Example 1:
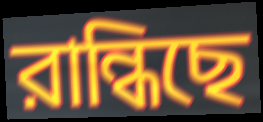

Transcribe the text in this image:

রান্ধিছে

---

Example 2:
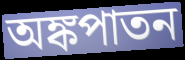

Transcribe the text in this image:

অঙ্কপাতন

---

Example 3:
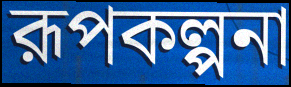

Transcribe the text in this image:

রূপকল্পনা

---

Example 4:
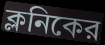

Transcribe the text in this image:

ক্লনিকের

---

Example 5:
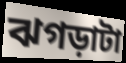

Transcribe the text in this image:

ঝগড়াটা